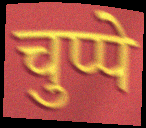
चुप्पे